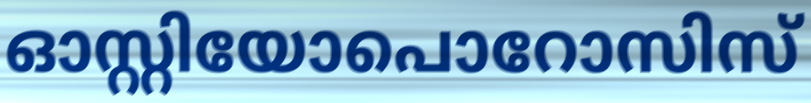
ഓസ്റ്റിയോപൊറോസിസ്